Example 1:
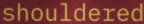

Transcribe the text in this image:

shouldered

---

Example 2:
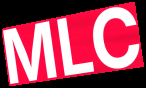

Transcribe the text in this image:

MLC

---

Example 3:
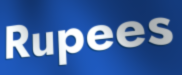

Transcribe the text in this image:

Rupees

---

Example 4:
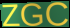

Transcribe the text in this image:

ZGC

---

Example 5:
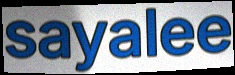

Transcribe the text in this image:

sayalee